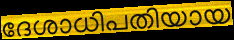
ദേശാധിപതിയായ